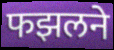
फझलने